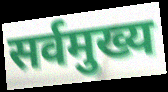
सर्वमुख्य